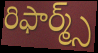
రిఫార్మ్స్